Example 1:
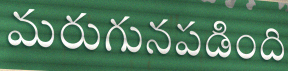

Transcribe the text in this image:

మరుగునపడింది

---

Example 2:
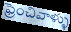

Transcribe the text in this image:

ఫ్రెంచివాళ్ళు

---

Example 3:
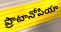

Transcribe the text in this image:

ప్రొటానోపియా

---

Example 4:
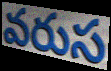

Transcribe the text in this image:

వరుస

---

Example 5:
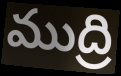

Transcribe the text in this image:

ముద్రి